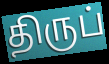
திருப்